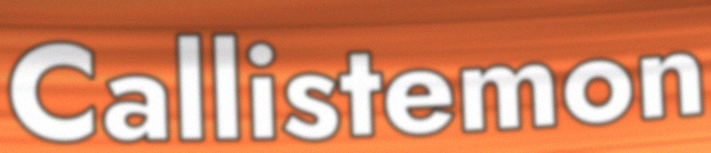
Callistemon